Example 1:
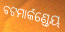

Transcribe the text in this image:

ବଟମାର୍କଣ୍ଡେୟ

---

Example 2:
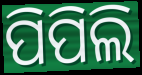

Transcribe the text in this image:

ପିପିଲି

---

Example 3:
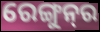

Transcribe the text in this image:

ରେଙ୍ଗୁନ୍‌ର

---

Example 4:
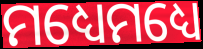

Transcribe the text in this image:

ମଧ୍ୟେମଧ୍ୟେ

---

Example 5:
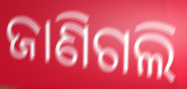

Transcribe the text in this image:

ଜାଣିଗଲି